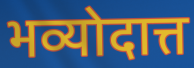
भव्योदात्त